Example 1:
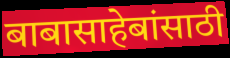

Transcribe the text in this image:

बाबासाहेबांसाठी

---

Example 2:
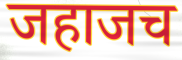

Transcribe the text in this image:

जहाजच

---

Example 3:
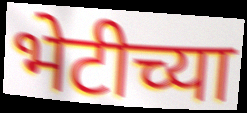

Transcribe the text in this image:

भेटीच्या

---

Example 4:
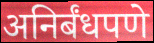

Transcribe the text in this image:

अनिर्बंधपणे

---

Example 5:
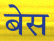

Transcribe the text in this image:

बेस